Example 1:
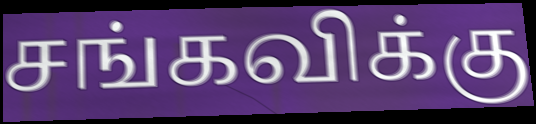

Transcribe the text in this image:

சங்கவிக்கு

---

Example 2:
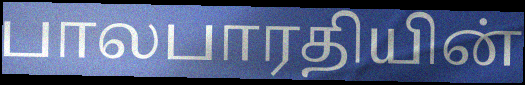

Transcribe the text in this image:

பாலபாரதியின்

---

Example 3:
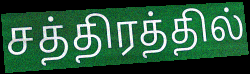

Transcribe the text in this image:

சத்திரத்தில்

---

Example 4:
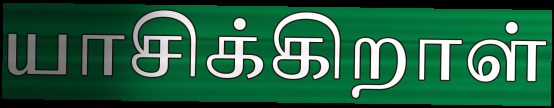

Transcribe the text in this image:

யாசிக்கிறாள்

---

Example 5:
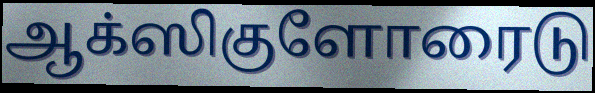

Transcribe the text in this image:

ஆக்ஸிகுளோரைடு